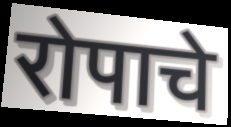
रोपाचे